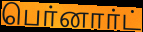
பெர்னார்ட்